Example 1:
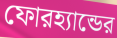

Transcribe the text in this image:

ফোরহ্যান্ডের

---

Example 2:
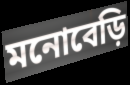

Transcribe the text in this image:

মনোবেড়ি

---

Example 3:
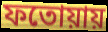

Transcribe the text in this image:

ফতোয়ায়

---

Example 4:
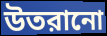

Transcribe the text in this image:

উতরানো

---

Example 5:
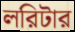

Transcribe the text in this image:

লরিটার